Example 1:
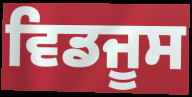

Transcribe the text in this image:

ਵਿਡਜੂਸ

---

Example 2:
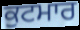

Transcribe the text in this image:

ਕੁਟਮਾਰ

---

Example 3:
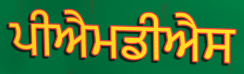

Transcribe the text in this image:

ਪੀਐਮਡੀਐਸ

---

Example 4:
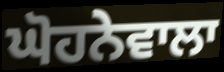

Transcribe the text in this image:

ਘੋਹਨੇਵਾਲਾ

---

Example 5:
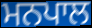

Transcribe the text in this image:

ਮਨਪਾਲ